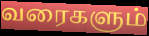
வரைகளும்